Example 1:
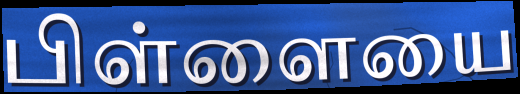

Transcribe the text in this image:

பிள்ளையை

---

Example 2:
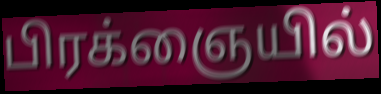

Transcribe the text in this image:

பிரக்ஞையில்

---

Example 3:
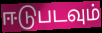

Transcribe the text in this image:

ஈடுபடவும்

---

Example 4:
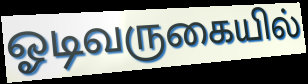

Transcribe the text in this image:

ஓடிவருகையில்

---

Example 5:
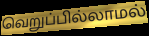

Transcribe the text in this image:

வெறுப்பில்லாமல்